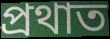
প্ৰথাত